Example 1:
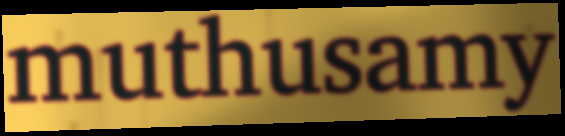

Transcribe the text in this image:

muthusamy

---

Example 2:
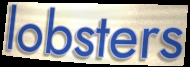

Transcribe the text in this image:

lobsters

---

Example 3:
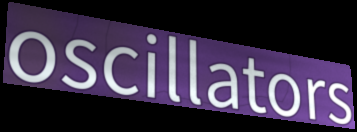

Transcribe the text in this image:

oscillators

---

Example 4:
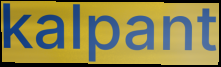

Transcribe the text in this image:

kalpant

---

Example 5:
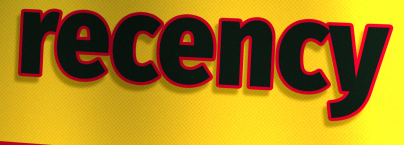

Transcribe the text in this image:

recency